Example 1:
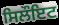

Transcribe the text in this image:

ਸਿਲੌਇਟ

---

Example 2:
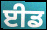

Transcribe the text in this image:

ਈਡ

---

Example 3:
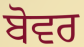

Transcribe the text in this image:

ਬੋਵਰ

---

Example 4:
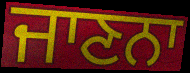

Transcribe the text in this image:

ਜਾਣਨਾ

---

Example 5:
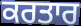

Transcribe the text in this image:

ਕਰਤਾਰ